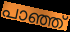
പാഞ്ഞ്